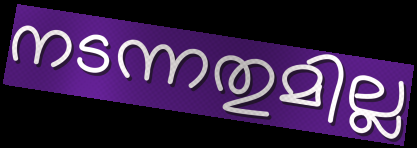
നടന്നതുമില്ല